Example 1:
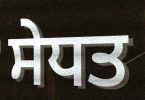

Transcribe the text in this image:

ਸੇਧਤ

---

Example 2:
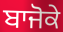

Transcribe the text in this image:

ਬਾਜੋਕੇ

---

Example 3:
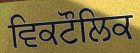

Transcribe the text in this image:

ਵਿਕਟੌਲਿਕ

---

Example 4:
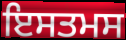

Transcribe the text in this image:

ਇਸਤਮਸ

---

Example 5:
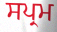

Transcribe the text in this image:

ਸਪ੍ਰਮ